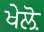
ਖੇਲ਼ੋ